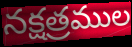
నక్షత్రముల